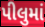
પીલુમાં